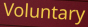
Voluntary